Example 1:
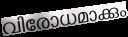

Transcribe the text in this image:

വിരോധമാക്കും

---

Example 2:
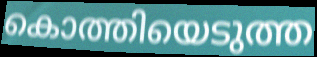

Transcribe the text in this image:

കൊത്തിയെടുത്ത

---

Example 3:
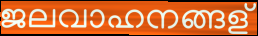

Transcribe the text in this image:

ജലവാഹനങ്ങള്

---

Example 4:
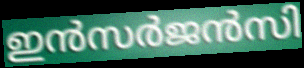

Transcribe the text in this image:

ഇൻസർജൻസി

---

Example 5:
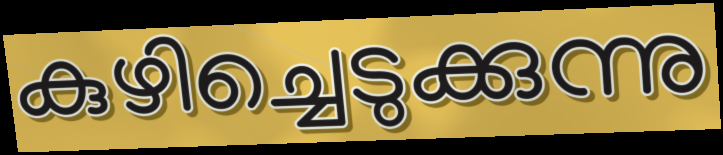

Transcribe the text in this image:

കുഴിച്ചെടുക്കുന്നു